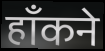
हाँकने